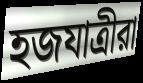
হজযাত্রীরা